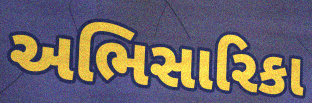
અભિસારિકા